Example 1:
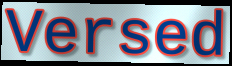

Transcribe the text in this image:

Versed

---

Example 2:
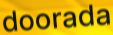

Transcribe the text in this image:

doorada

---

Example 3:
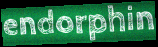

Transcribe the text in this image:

endorphin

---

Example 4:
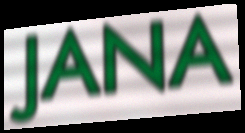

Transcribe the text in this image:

JANA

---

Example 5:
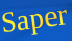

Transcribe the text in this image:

Saper